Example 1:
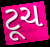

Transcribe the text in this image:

ટૂચ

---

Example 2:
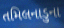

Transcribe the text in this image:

તમિલનાડુના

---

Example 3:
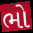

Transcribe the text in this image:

ભો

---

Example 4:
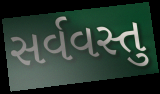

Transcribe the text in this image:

સર્વવસ્તુ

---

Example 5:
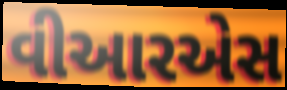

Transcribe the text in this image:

વીઆરએસ